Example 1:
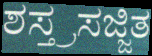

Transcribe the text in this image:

ಶಸ್ತ್ರಸಜ್ಜಿತ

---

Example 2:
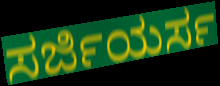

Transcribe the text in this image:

ಸರ್ಜಿಯರ್ಸ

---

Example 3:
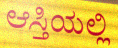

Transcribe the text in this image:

ಆಸ್ತಿಯಲ್ಲಿ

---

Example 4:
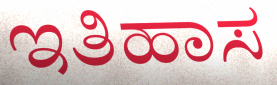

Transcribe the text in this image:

ಇತಿಹಾಸ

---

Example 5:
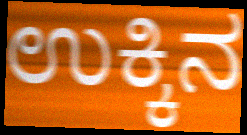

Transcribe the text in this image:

ಉಕ್ಕಿನ